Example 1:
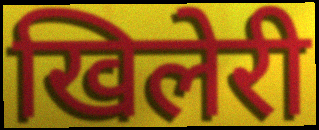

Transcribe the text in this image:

खिलेरी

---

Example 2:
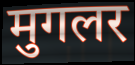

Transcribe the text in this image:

मुगलर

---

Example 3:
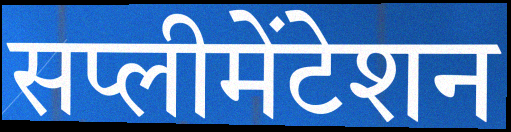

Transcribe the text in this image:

सप्लीमेंटेशन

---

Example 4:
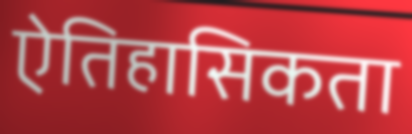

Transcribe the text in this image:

ऐतिहासिकता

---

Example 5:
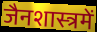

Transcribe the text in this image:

जैनशास्त्रमें